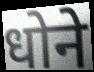
धोने